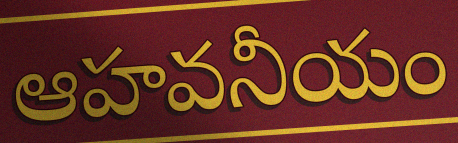
ఆహవనీయం